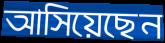
আসিয়েছেন